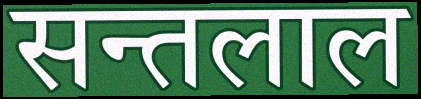
सन्तलाल